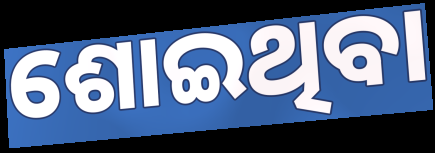
ଶୋଇଥିବା